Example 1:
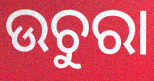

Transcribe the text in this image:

ଉଚୁରା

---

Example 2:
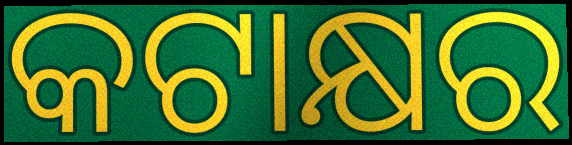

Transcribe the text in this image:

କଟାକ୍ଷର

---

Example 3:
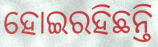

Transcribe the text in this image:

ହୋଇରହିଛନ୍ତି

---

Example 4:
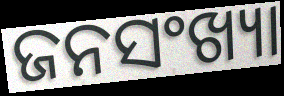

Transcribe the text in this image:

ଜନସଂଖ୍ଯା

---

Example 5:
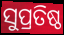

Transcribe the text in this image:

ସୁପ୍ରତିଷ୍ଠ